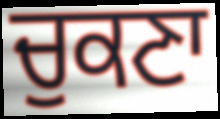
ਚੁਕਣਾ